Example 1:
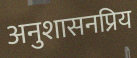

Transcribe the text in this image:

अनुशासनप्रिय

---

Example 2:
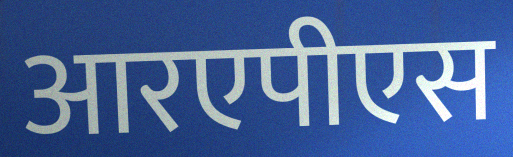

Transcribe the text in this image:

आरएपीएस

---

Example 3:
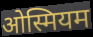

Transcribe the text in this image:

ओस्मियम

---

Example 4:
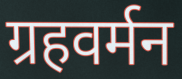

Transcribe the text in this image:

ग्रहवर्मन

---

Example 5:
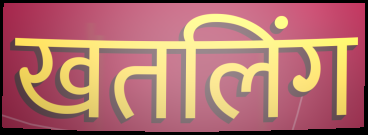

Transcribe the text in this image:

खतलिंग